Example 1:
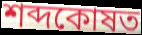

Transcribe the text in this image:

শব্দকোষত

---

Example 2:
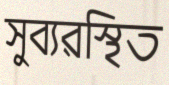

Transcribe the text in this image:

সুব্যৱস্থিত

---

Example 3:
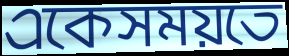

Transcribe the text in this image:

একেসময়তে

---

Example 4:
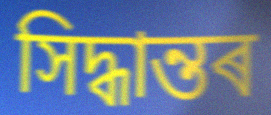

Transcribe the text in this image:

সিদ্ধান্তৰ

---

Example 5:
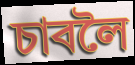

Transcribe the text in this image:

চাবলৈ